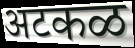
अटकळ